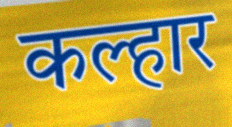
कल्हार